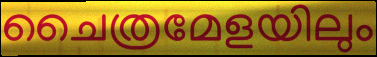
ചൈത്രമേളയിലും